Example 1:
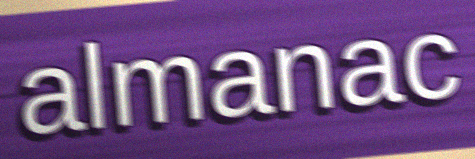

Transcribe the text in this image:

almanac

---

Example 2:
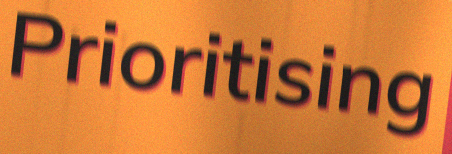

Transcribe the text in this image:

Prioritising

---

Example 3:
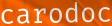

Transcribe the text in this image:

carodoc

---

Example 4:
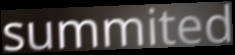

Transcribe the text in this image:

summited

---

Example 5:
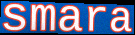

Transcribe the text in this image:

smara